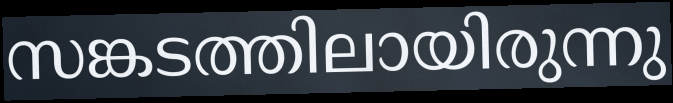
സങ്കടത്തിലായിരുന്നു